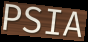
PSIA